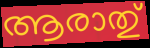
ആരാതു്